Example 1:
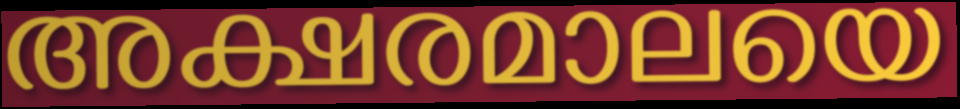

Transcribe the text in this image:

അക്ഷരമാലയെ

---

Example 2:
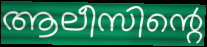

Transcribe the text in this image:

ആലീസിന്റെ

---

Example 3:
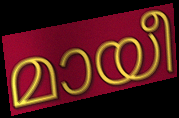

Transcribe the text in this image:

മായീ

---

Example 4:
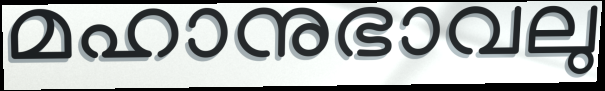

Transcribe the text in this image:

മഹാനുഭാവലു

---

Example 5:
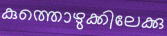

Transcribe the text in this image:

കുത്തൊഴുക്കിലേക്കു